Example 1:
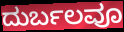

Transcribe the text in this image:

ದುರ್ಬಲವೂ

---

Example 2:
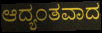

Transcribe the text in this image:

ಆದ್ಯಂತವಾದ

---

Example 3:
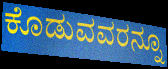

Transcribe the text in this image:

ಕೊಡುವವರನ್ನೂ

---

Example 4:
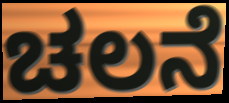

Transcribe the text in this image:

ಚಲನೆ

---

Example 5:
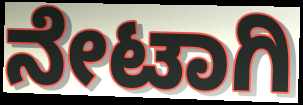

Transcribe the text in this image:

ನೇಟಾಗಿ